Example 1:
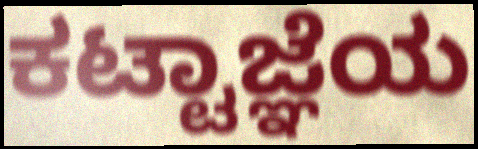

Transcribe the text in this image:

ಕಟ್ಟಾಜ್ಞೆಯ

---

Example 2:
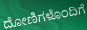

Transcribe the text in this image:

ದೋಣಿಗಳೊಂದಿಗೆ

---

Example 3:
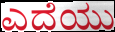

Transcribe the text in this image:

ಎದೆಯು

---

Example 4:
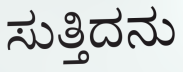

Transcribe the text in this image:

ಸುತ್ತಿದನು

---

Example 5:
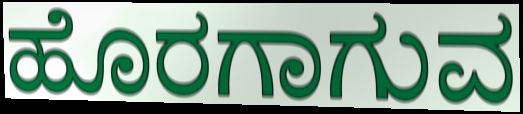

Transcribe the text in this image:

ಹೊರಗಾಗುವ